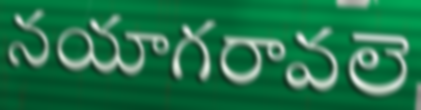
నయాగరావలె